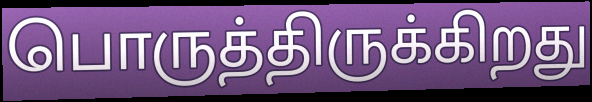
பொருத்திருக்கிறது